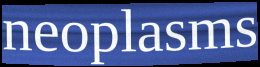
neoplasms